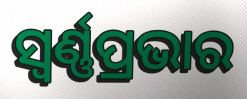
ସ୍ୱର୍ଣ୍ଣପ୍ରଭାର